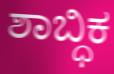
ಶಾಬ್ಧಿಕ